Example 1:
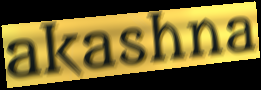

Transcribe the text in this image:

akashna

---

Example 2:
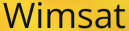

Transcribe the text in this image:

Wimsat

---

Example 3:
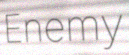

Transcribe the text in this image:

Enemy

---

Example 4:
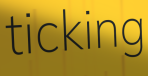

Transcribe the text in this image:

ticking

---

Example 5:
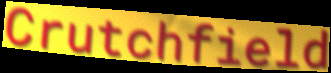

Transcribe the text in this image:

Crutchfield